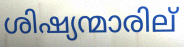
ശിഷ്യന്മാരില്